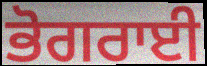
ਭੋਗਰਾਈ